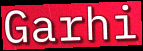
Garhi